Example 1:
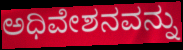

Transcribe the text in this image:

ಅಧಿವೇಶನವನ್ನು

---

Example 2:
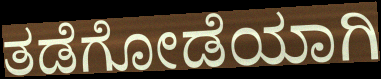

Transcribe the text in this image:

ತಡೆಗೋಡೆಯಾಗಿ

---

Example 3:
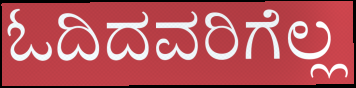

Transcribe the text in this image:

ಓದಿದವರಿಗೆಲ್ಲ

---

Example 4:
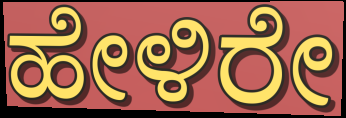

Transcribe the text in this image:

ಹೇಳಿರೇ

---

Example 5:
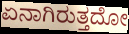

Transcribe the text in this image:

ಏನಾಗಿರುತ್ತದೋ